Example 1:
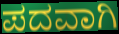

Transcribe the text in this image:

ಪದವಾಗಿ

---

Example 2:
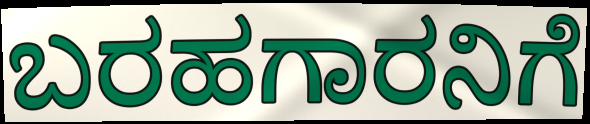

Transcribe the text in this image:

ಬರಹಗಾರನಿಗೆ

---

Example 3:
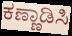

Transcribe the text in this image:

ಕಣ್ಣಾಡಿಸಿ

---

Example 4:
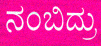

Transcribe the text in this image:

ನಂಬಿದ್ರು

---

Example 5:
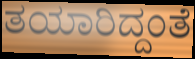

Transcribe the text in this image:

ತಯಾರಿದ್ದಂತೆ